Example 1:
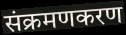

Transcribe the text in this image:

संक्रमणकरण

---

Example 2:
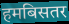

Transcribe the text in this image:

हमबिसतर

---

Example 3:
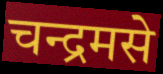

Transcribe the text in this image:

चन्द्रमसे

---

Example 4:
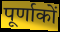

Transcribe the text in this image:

पूर्णाकों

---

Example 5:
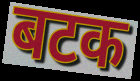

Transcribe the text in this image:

बटक